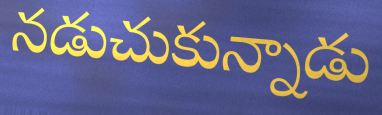
నడుచుకున్నాడు